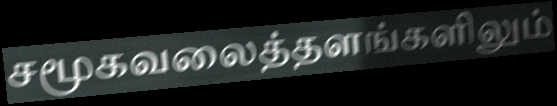
சமூகவலைத்தளங்களிலும்